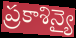
ప్రకాశిన్యై